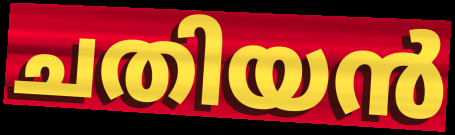
ചതിയൻ